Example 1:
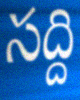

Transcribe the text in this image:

సద్ది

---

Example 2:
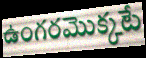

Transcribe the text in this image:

ఉంగరమొక్కటే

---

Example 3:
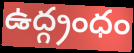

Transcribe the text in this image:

ఉద్గ్రంధం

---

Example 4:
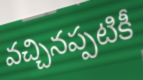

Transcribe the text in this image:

వచ్చినప్పటికీ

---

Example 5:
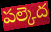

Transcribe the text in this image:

పల్కెద